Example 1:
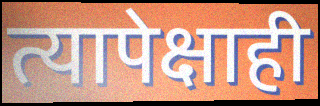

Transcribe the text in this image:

त्यापेक्षाही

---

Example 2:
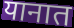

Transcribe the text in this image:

यानात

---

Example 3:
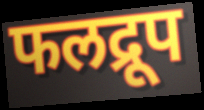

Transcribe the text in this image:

फलद्रूप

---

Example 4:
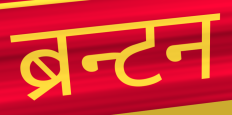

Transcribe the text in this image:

ब्रन्टन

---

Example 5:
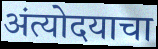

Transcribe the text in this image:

अंत्योदयाचा